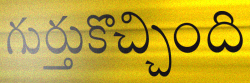
గుర్తుకొచ్చింది